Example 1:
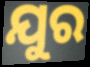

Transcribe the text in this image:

ଯୁର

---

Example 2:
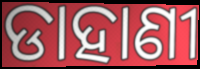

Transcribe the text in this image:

ଡାହାଣୀ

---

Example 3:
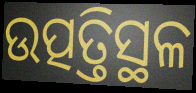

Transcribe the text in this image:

ଉତ୍ପତ୍ତିସ୍ଥଳ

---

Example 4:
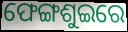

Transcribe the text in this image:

ଫେଙ୍ଗଶୁଇରେ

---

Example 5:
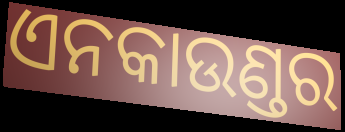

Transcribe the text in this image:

ଏନକାଉଣ୍ଡର